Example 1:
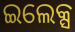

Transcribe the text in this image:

ଇଲେକ୍ସ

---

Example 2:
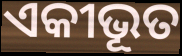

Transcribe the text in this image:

ଏକୀଭୂତ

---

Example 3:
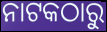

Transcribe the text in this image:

ନାଟକଠାରୁ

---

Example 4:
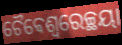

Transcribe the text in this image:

ଚୈଵେଶ୍ଵରେଚ୍ଛୟା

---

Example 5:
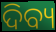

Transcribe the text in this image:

ଦିବ୍ୟ